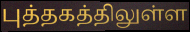
புத்தகத்திலுள்ள